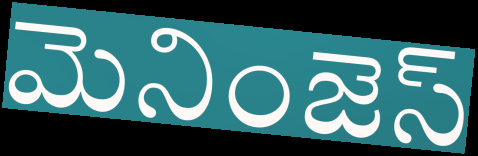
మెనింజెస్